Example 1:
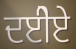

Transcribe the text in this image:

ਦਈੇਏ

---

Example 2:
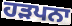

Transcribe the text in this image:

ਹੜਪਨਾ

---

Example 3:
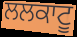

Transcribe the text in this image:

ਲਲਕਾਟੂ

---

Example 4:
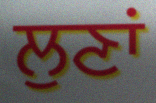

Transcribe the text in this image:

ਲੁਣਾਂ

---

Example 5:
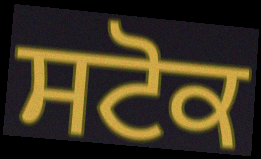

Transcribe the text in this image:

ਸਟੋਕ